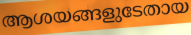
ആശയങ്ങളുടേതായ